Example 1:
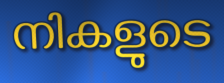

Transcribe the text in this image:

നികളുടെ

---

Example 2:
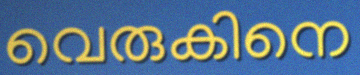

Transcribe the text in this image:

വെരുകിനെ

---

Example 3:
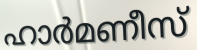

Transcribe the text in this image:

ഹാർമണീസ്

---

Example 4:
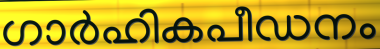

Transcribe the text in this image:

ഗാർഹികപീഡനം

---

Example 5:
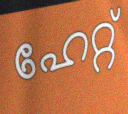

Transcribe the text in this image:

ഹേറ്റ്